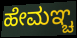
ಹೇಮಞ್ಚ